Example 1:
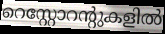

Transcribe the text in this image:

റെസ്റ്റോറന്റുകളിൽ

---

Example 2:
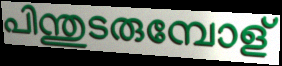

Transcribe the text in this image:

പിന്തുടരുമ്പോള്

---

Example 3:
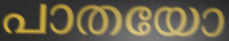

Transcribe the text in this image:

പാതയോ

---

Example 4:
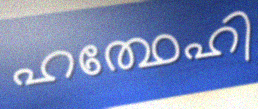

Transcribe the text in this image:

ഹത്ഥേഹി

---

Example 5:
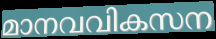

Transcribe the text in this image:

മാനവവികസന